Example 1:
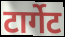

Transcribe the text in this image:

टार्गेट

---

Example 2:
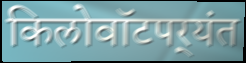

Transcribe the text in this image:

किलोवॉटपर्यंत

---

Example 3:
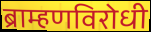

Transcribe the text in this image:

ब्राम्हणविरोधी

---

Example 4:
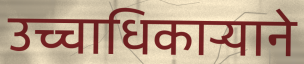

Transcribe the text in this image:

उच्चाधिकाऱ्याने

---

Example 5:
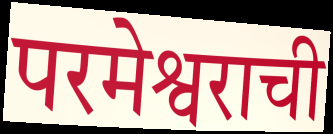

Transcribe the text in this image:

परमेश्वराची